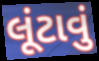
લૂંટાવું